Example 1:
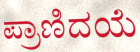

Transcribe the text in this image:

ಪ್ರಾಣಿದಯೆ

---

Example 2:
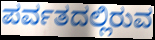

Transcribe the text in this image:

ಪರ್ವತದಲ್ಲಿರುವ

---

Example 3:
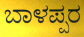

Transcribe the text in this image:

ಬಾಳಪ್ಪರ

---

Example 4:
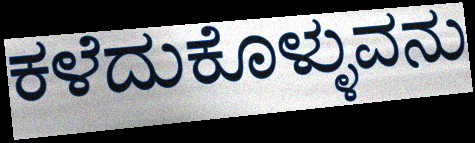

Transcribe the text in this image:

ಕಳೆದುಕೊಳ್ಳುವನು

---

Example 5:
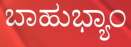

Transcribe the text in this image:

ಬಾಹುಭ್ಯಾಂ